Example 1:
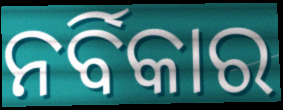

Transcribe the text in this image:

ନର୍ବିକାର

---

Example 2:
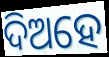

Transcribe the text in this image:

ଦିଅହେ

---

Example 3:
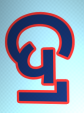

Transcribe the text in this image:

ଦ୍ର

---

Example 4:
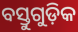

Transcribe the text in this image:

ବସ୍ତୁଗୁଡ଼ିକ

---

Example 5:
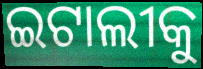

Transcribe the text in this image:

ଇଟାଲୀକୁ